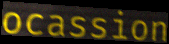
ocassion